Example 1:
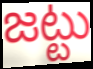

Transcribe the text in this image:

జట్టు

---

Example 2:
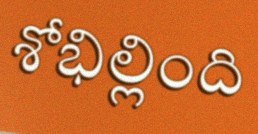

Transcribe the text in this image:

శోభిల్లింది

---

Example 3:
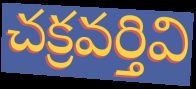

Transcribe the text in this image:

చక్రవర్తివి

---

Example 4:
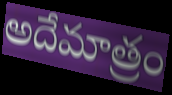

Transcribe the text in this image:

అదేమాత్రం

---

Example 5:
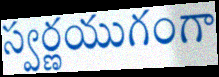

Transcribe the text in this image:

స్వర్ణయుగంగా